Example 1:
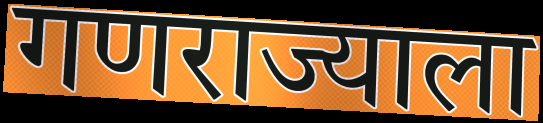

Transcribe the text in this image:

गणराज्याला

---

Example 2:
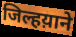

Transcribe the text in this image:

जिल्हय़ाने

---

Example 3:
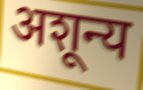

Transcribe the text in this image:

अशून्य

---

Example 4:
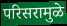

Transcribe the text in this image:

परिसरामुळे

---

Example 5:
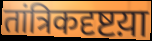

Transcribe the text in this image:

तांत्रिकदृष्टय़ा